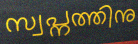
സ്വപ്നത്തിനു